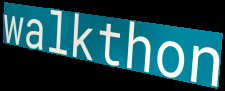
walkthon